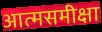
आत्मसमीक्षा